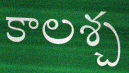
కాలశ్చ